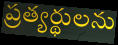
ప్రత్యర్థులను